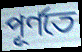
পূর্ণতে